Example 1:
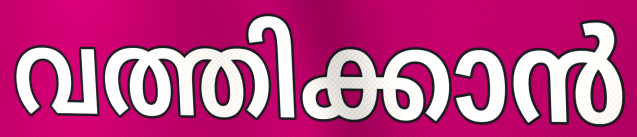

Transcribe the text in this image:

വത്തിക്കാൻ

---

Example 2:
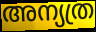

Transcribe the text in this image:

അന്യത്ര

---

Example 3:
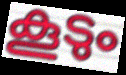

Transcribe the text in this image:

കൂടും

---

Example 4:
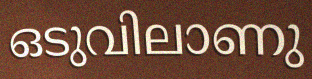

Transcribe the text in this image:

ഒടുവിലാണു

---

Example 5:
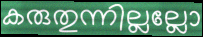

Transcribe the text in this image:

കരുതുന്നില്ലല്ലോ